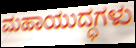
ಮಹಾಯುದ್ಧಗಳು